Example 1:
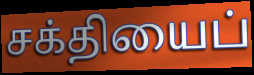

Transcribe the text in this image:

சக்தியைப்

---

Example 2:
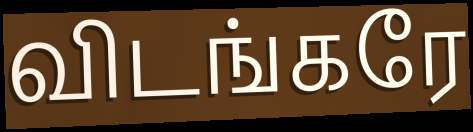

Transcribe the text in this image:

விடங்கரே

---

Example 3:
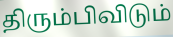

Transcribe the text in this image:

திரும்பிவிடும்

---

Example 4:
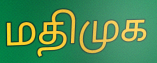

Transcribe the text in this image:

மதிமுக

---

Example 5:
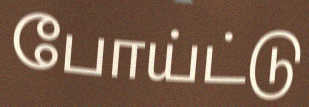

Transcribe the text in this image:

போய்ட்டு